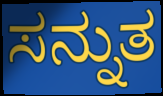
ಸನ್ನುತ